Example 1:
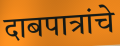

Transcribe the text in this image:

दाबपात्रांचे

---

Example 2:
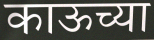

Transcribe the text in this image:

काऊच्या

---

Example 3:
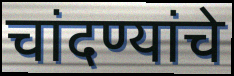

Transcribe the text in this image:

चांदण्यांचे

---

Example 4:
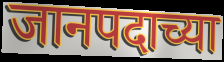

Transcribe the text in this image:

जानपदाच्या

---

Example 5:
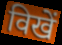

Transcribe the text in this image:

विखें